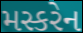
મસ્કરેન